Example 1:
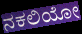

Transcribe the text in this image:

ನಕಲಿಯೋ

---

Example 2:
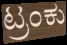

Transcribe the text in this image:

ಟ್ರಂಕು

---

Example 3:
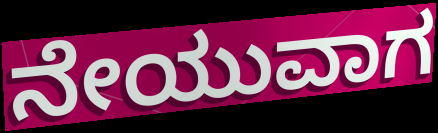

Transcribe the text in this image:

ನೇಯುವಾಗ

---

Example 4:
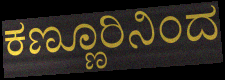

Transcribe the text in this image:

ಕಣ್ಣೂರಿನಿಂದ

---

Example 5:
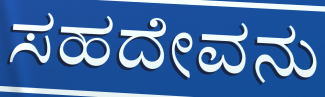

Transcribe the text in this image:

ಸಹದೇವನು